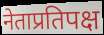
नेताप्रतिपक्ष